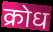
क्रोध